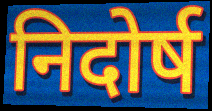
निदोर्ष